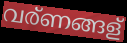
വര്ണങ്ങള്